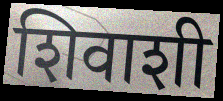
शिवाशी